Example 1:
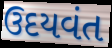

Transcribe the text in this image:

ઉદયવંત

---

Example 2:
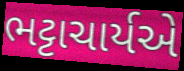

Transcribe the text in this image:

ભટ્ટાચાર્યએ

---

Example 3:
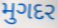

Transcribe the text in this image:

મુગદર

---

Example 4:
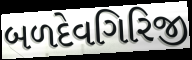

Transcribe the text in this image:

બળદેવગિરિજી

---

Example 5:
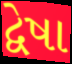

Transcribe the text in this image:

દ્વેષા